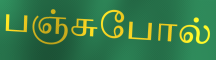
பஞ்சுபோல்